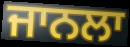
ਜਾਨਲਾ